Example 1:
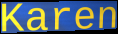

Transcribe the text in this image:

Karen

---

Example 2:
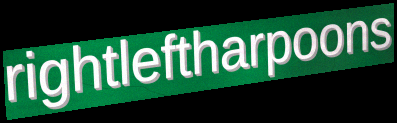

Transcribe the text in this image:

rightleftharpoons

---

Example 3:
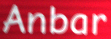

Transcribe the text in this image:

Anbar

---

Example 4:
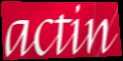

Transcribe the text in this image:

actin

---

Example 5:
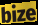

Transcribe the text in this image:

bize